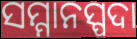
ସମ୍ମାନସ୍ପଦା